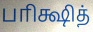
பரிக்ஷித்